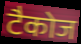
टैकोज